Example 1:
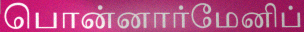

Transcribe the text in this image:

பொன்னார்மேனிப்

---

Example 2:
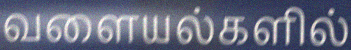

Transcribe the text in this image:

வளையல்களில்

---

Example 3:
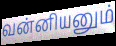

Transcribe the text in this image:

வன்னியனும்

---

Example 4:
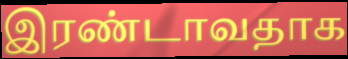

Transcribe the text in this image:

இரண்டாவதாக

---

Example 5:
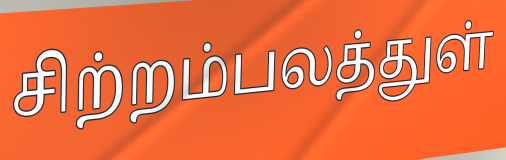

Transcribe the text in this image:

சிற்றம்பலத்துள்